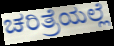
ಚರಿತ್ರೆಯಲ್ಲೆ